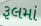
રૂલમાં